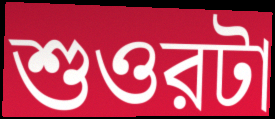
শুওরটা